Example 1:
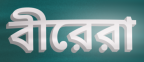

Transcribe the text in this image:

বীরেরা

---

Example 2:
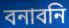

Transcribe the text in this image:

বনাবনি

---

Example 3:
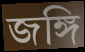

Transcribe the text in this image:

জঙ্গি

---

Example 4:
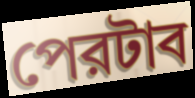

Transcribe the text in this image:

পেরটাব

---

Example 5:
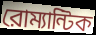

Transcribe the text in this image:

রোম্যান্টিক